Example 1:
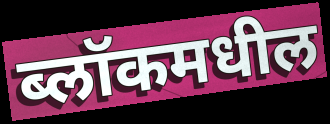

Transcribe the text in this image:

ब्लॉकमधील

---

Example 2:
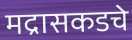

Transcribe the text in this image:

मद्रासकडचे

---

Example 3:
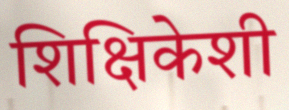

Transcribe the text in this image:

शिक्षिकेशी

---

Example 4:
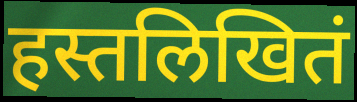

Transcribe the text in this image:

हस्तलिखितं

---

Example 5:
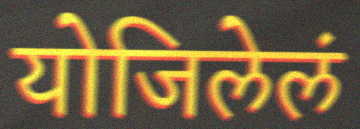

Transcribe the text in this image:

योजिलेलं